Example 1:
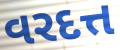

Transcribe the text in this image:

વરદત્ત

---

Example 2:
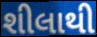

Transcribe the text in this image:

શીલાથી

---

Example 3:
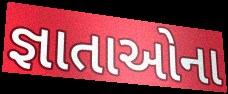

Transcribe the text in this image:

જ્ઞાતાઓના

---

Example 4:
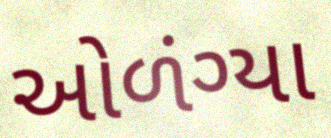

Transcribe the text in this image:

ઓળંગ્યા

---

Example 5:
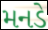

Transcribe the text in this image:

મનડે